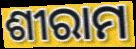
ଶୀରାମ